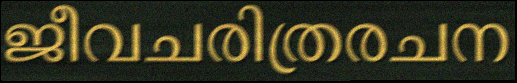
ജീവചരിത്രരചന